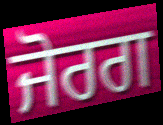
ਜੋਰਗ